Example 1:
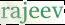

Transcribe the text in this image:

rajeev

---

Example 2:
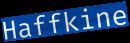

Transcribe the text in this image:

Haffkine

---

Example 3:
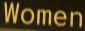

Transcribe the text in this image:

Women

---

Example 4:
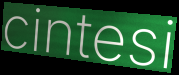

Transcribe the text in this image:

cintesi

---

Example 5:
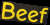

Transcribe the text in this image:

Beef